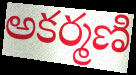
అకర్మణి